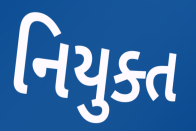
નિયુક્ત